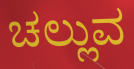
ಚಲ್ಲುವ